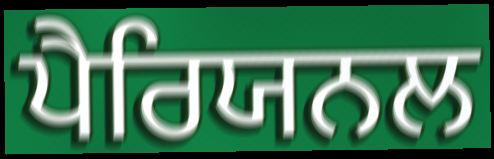
ਪੈਰਿਯਨਲ